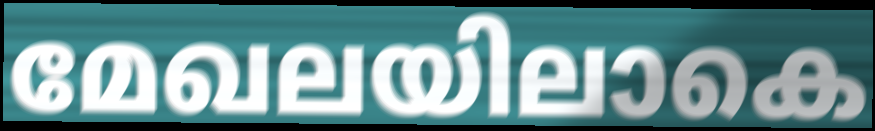
മേഖലയിലാകെ